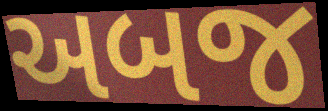
અબજ